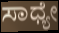
ಸಾಧ್ಯೇ